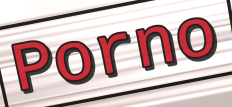
Porno